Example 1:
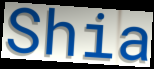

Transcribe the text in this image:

Shia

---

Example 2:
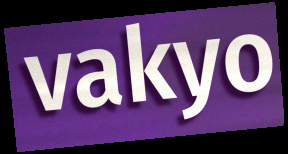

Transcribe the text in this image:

vakyo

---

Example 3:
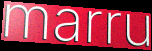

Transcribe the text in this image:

marru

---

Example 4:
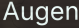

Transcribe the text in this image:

Augen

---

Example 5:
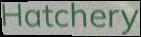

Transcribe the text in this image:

Hatchery